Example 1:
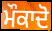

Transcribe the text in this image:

ਮੌਕਾਦੋ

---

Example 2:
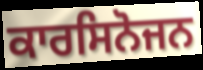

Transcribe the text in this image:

ਕਾਰਸਿਨੋਜਨ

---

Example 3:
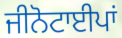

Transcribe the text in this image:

ਜੀਨੋਟਾਈਪਾਂ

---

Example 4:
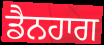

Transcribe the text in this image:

ਡੈਨਹਾਗ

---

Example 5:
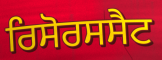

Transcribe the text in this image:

ਰਿਸੋਰਸਸੈਟ